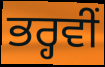
ਭਰ੍ਹਵੀਂ